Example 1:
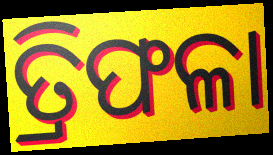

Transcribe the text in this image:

ତ୍ରିଫଳା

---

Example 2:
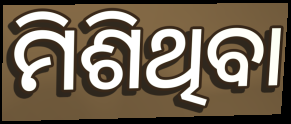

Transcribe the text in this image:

ମିଶିଥିବା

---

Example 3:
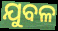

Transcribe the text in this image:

ଯୁବଳ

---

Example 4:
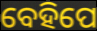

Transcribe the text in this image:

ବେହିପେ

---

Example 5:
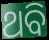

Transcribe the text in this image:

ଥବି